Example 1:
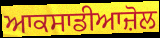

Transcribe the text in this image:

ਆਕਸਾਡੀਆਜ਼ੋਲ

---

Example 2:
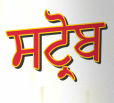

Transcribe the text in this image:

ਸਟ੍ਰੋਬ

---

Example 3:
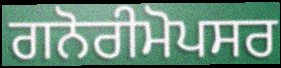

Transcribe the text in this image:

ਗਨੋਰੀਮੋਪਸਰ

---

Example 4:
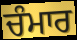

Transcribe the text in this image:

ਚੰਮਾਰ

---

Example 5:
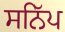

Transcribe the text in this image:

ਸਨਿੱਪ